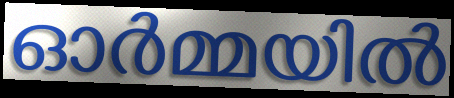
ഓർമ്മയിൽ